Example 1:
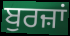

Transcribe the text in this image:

ਬੁਰਜ਼ਾਂ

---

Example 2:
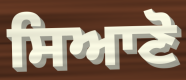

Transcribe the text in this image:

ਸਿਆਣੋ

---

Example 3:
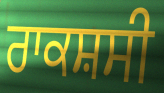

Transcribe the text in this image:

ਰਾਕਸ਼ਸੀ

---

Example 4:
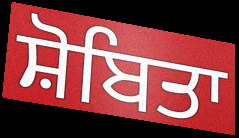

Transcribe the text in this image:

ਸ਼ੋਬਿਤਾ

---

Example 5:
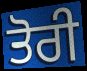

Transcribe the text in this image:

ਤੋਰੀ